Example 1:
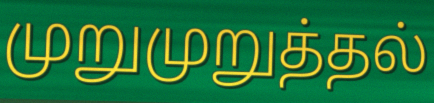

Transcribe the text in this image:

முறுமுறுத்தல்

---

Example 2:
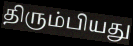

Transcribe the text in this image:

திரும்பியது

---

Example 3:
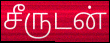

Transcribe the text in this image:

சீருடன்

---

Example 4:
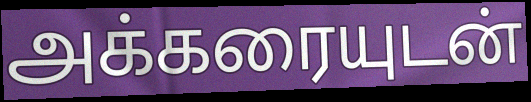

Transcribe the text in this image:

அக்கரையுடன்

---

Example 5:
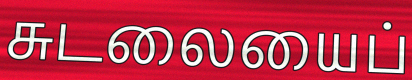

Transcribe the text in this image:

சுடலையைப்